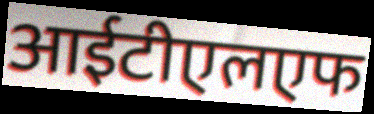
आईटीएलएफ